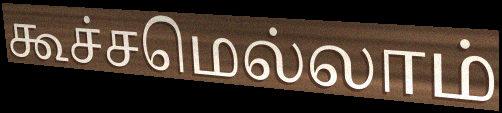
கூச்சமெல்லாம்